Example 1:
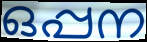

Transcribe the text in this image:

ഒപ്പന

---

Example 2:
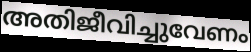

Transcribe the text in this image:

അതിജീവിച്ചുവേണം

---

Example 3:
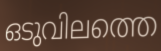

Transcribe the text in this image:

ഒടുവിലത്തെ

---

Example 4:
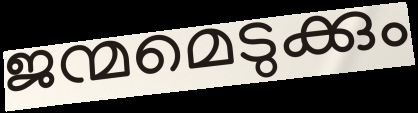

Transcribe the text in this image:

ജന്മമെടുക്കും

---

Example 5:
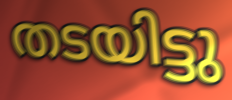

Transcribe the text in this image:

തടയിട്ടു